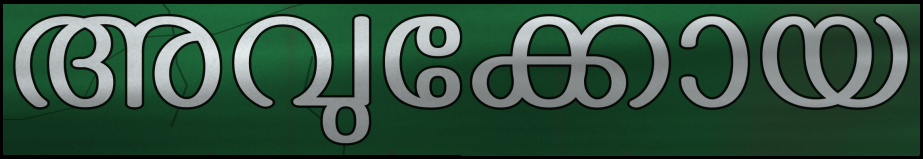
അവുക്കോയ